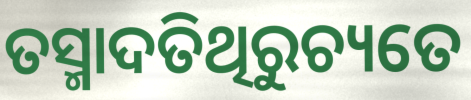
ତସ୍ମାଦତିଥିରୁଚ୍ୟତେ